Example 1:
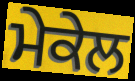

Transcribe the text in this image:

ਮੇਕੇਲ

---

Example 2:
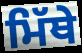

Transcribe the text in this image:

ਮਿੱਥੇ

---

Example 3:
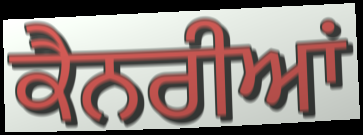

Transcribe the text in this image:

ਕੈਨਰੀਆਂ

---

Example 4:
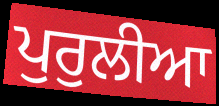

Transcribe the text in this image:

ਪੁਰੁਲੀਆ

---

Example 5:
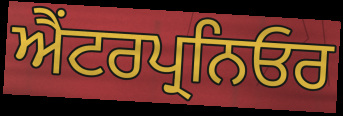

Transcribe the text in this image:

ਐਂਟਰਪ੍ਰਨਿਓਰ